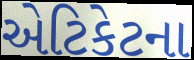
એટિકેટના